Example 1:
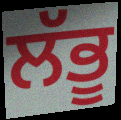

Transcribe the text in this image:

ਲੱਭੂ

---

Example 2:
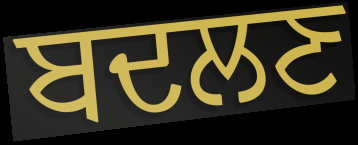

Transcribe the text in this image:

ਬਦਲਣ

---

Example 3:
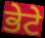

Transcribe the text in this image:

ਭੇਟੇ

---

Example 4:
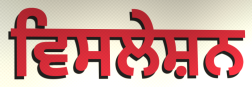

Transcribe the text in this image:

ਵਿਸਲੇਸ਼ਨ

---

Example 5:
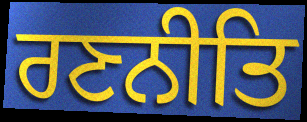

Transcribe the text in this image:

ਰਣਨੀਤਿ